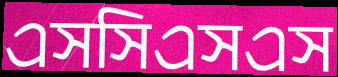
এসসিএসএস